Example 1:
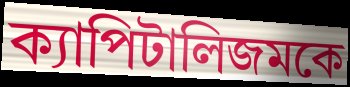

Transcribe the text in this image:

ক্যাপিটালিজমকে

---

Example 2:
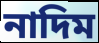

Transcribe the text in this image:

নাদিম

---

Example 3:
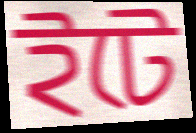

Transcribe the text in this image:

ইটে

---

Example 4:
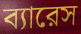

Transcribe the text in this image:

ব্যারেস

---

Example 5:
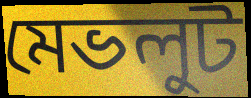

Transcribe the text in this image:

মেভলুট